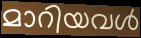
മാറിയവൾ